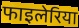
फाइलेरिया